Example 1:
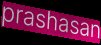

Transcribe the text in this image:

prashasan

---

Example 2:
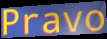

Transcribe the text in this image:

Pravo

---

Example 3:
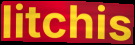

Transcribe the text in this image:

litchis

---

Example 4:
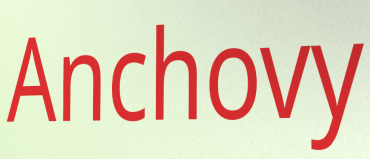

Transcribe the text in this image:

Anchovy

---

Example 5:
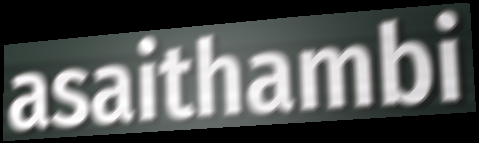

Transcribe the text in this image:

asaithambi